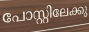
പോസ്റ്റിലേക്കു